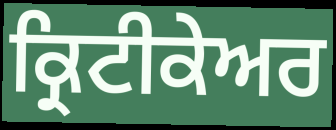
ਕ੍ਰਿਟੀਕੇਅਰ